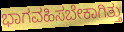
ಭಾಗವಹಿಸಬೇಕಾಗಿತ್ತು